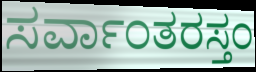
ಸರ್ವಾಂತರಸ್ತಂ